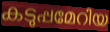
കടുപ്പമേറിയ